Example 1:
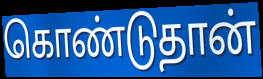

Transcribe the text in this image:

கொண்டுதான்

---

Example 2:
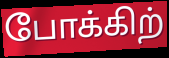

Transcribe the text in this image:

போக்கிற்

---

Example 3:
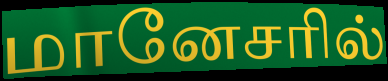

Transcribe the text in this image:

மானேசரில்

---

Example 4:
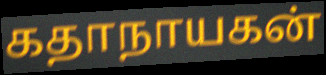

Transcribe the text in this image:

கதாநாயகன்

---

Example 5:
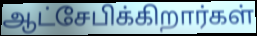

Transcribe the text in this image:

ஆட்சேபிக்கிறார்கள்